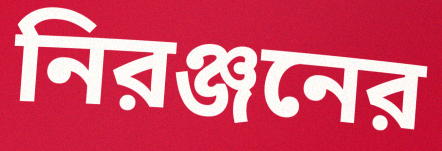
নিরঞ্জনের